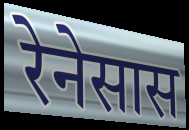
रेनेसास